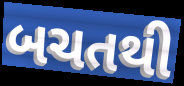
બચતથી